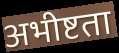
अभीष्टता